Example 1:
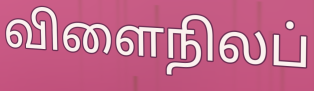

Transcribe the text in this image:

விளைநிலப்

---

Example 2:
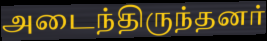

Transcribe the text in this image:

அடைந்திருந்தனர்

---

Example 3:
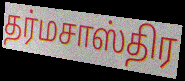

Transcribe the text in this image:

தர்மசாஸ்திர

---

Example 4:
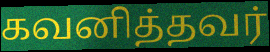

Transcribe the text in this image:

கவனித்தவர்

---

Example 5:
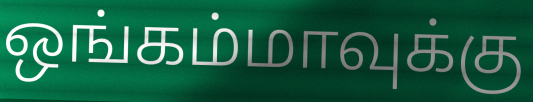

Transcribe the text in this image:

ஒங்கம்மாவுக்கு